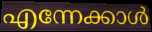
എന്നേക്കാൾ